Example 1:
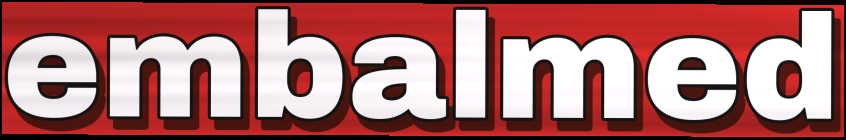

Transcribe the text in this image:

embalmed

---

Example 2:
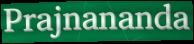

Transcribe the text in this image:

Prajnananda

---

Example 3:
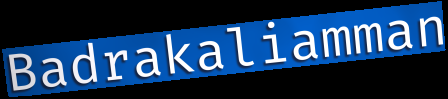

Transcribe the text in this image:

Badrakaliamman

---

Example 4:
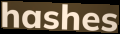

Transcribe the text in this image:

hashes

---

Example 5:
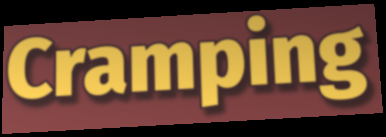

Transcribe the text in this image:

Cramping